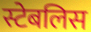
स्टेबलिस